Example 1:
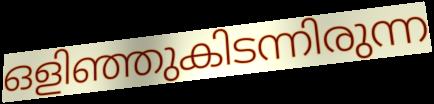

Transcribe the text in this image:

ഒളിഞ്ഞുകിടന്നിരുന്ന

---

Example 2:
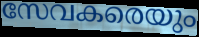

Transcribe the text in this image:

സേവകരെയും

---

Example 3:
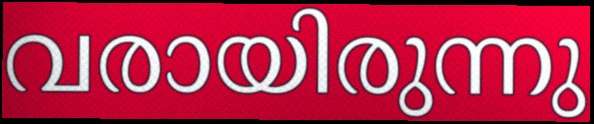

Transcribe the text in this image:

വരായിരുന്നു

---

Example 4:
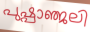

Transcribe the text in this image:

പുഷ്പാഞ്ജലി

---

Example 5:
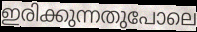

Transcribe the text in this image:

ഇരിക്കുന്നതുപോലെ